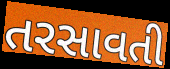
તરસાવતી